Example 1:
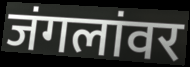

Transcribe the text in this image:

जंगलांवर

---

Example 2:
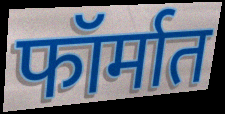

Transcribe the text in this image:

फॉर्मात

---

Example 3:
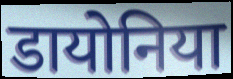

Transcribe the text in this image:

डायोनिया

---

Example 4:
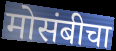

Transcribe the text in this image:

मोसंबीचा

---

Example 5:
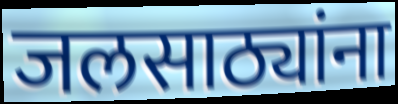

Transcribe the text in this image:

जलसाठ्यांना